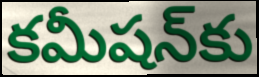
కమీషన్‌కు